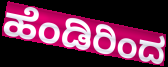
ಹೆಂಡಿರಿಂದ